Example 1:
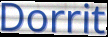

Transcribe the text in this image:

Dorrit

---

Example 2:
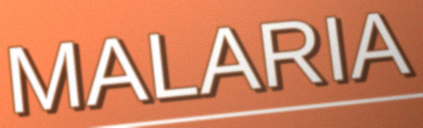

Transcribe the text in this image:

MALARIA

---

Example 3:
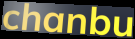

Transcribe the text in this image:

chanbu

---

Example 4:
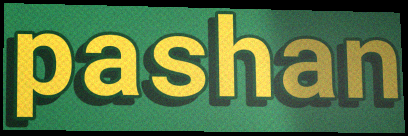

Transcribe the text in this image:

pashan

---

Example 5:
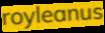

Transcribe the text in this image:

royleanus